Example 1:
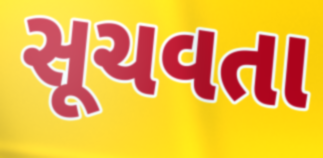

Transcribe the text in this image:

સૂચવતા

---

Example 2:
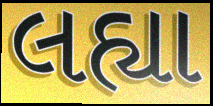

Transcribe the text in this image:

લહ્યા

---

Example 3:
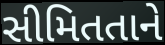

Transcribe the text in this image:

સીમિતતાને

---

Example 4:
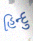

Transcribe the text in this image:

હિન્દુ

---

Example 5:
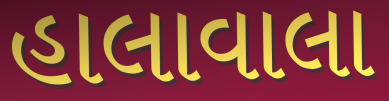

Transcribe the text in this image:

હાલાવાલા